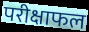
परीक्षाफल